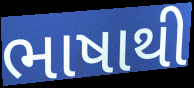
ભાષાથી